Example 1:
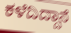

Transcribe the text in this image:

ಕಳೆದಿದ್ದಾನೆ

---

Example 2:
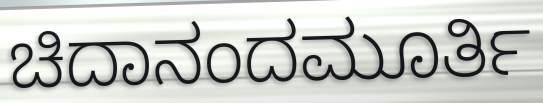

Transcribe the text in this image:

ಚಿದಾನಂದಮೂರ್ತಿ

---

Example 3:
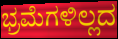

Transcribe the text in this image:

ಭ್ರಮೆಗಳಿಲ್ಲದ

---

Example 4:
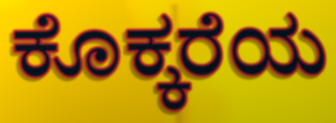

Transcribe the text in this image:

ಕೊಕ್ಕರೆಯ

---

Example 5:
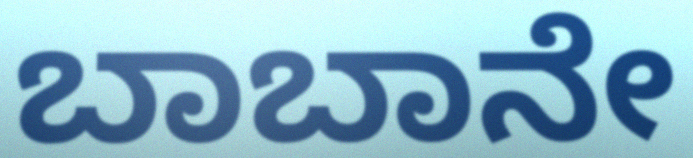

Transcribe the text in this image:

ಬಾಬಾನೇ